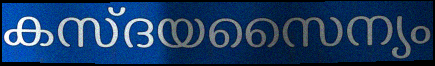
കസ്ദയസൈന്യം